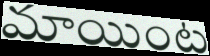
మాయింట